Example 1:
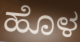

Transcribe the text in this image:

ಹೊಳ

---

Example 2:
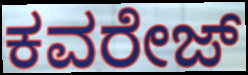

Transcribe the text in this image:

ಕವರೇಜ್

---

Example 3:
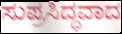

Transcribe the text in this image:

ಸುಪ್ರಸಿದ್ಧವಾದ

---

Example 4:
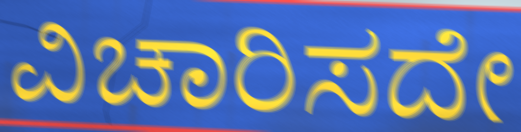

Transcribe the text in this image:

ವಿಚಾರಿಸದೇ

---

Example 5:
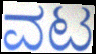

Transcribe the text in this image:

ವಟ